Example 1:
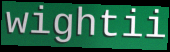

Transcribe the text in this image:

wightii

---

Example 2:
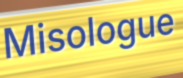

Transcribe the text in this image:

Misologue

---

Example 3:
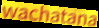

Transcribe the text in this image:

wachatana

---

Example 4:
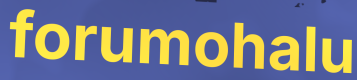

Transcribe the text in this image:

forumohalu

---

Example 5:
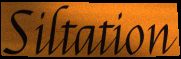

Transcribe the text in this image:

Siltation